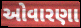
ઓવારણા